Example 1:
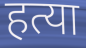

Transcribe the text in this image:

हत्या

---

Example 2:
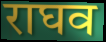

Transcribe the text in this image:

राघव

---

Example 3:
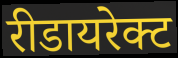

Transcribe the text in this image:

रीडायरेक्ट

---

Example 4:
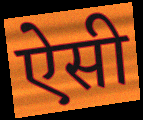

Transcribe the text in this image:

ऐसी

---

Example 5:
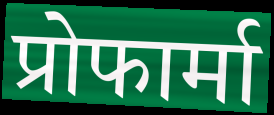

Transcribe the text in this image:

प्रोफार्मा